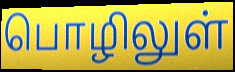
பொழிலுள்